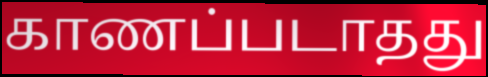
காணப்படாதது